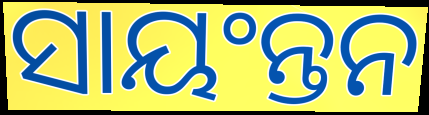
ସାୟଂନ୍ତନ